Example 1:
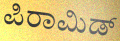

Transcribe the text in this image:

ಪಿರಾಮಿಡ್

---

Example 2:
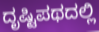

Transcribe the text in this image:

ದೃಷ್ಟಿಪಥದಲ್ಲಿ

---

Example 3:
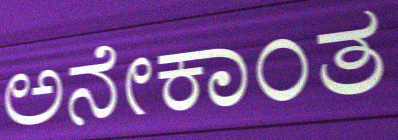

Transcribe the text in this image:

ಅನೇಕಾಂತ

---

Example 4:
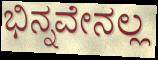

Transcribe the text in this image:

ಭಿನ್ನವೇನಲ್ಲ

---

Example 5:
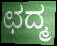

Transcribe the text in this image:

ಛದ್ಮ